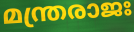
മന്ത്രരാജഃ